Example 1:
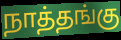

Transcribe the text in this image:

நாத்தங்கு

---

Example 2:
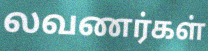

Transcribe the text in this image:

லவணர்கள்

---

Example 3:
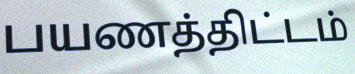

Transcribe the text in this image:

பயணத்திட்டம்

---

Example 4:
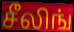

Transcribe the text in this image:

சீலிங்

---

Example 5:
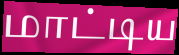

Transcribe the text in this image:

மாட்டிய